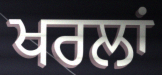
ਖਰਲਾਂ